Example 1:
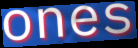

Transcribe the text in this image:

ones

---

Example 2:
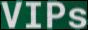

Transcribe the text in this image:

VIPs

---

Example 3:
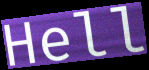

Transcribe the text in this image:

Hell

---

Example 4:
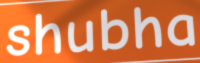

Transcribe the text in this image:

shubha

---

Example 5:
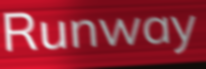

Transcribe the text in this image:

Runway